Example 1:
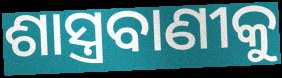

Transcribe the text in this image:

ଶାସ୍ତ୍ରବାଣୀକୁ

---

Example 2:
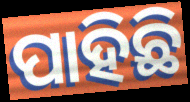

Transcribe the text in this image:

ପାହିଛି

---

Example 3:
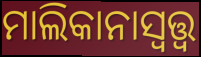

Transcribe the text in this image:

ମାଲିକାନାସ୍ୱତ୍ତ୍ୱ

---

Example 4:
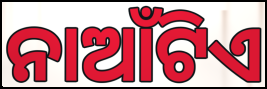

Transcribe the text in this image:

ନାଆଁଟିଏ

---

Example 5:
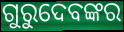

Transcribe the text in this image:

ଗୁରୁଦେବଙ୍କର